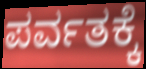
ಪರ್ವತಕ್ಕೆ